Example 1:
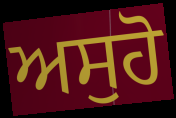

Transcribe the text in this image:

ਅਸੁਹੋ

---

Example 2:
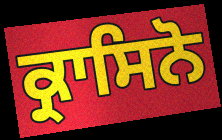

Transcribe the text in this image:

ਕ੍ਰਾਸਿਨੋ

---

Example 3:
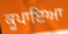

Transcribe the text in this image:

ਕੂਪਾਇਆ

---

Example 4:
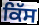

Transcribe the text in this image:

ਕਿੱਸ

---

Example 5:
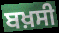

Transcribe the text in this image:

ਬਖ਼ਸੀ